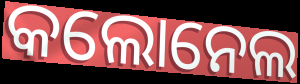
କଲୋନେଲ